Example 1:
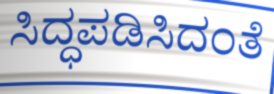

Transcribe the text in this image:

ಸಿದ್ಧಪಡಿಸಿದಂತೆ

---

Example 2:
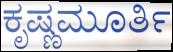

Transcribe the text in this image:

ಕೃಷ್ಣಮೂರ್ತಿ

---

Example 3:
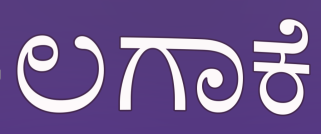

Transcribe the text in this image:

ಲಗಾಕೆ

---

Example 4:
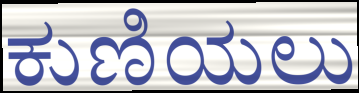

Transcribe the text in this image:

ಕುಣಿಯಲು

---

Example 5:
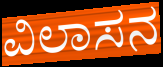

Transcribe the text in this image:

ವಿಲಾಸನ